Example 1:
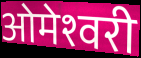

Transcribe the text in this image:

ओमेश्वरी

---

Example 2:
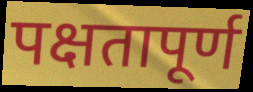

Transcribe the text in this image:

पक्षतापूर्ण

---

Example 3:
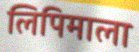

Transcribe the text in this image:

लिपिमाला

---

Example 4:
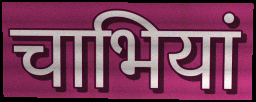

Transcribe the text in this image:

चाभियां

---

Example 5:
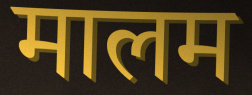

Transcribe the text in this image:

मालम